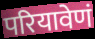
परियावेणं